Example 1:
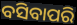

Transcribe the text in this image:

ବସିବାପରି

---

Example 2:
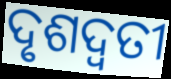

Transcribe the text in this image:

ଦୃଶଦ୍ୱତୀ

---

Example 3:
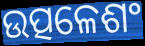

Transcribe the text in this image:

ଉତ୍ପଳେଶଂ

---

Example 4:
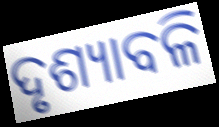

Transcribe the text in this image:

ଦୃଶ୍ୟାବଳି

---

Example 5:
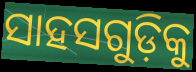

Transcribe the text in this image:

ସାହସଗୁଡ଼ିକୁ